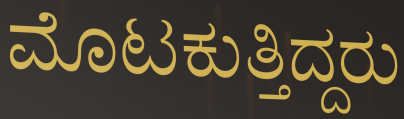
ಮೊಟಕುತ್ತಿದ್ದರು